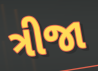
ત્રીજા